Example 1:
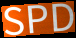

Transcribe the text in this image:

SPD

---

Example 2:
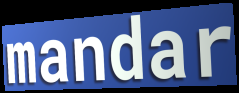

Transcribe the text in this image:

mandar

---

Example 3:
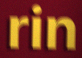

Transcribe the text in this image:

rin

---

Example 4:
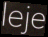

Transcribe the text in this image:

leje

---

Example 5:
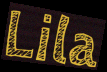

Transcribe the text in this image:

Lila